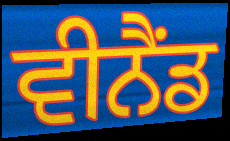
ਵੀਨੈਂਡ